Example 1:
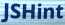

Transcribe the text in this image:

JSHint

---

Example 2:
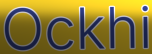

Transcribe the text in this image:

Ockhi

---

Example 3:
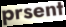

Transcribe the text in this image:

prsent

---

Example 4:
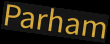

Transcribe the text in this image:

Parham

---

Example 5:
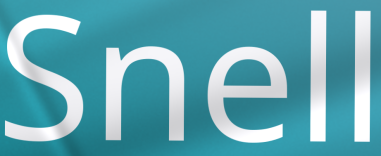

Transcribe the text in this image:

Snell